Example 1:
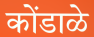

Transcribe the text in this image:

कोंडाळे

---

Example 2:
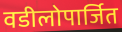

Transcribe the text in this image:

वडीलोपार्जित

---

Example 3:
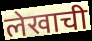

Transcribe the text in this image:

लेखाची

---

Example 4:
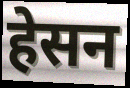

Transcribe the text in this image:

हेसन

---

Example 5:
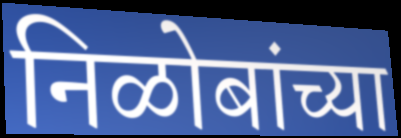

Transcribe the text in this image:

निळोबांच्या